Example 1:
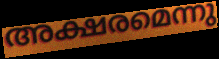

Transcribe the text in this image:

അക്ഷരമെന്നു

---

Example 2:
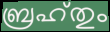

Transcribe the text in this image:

ബ്രഹ്തും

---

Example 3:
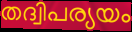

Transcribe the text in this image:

തദ്വിപര്യയം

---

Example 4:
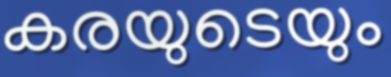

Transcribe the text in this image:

കരയുടെയും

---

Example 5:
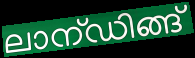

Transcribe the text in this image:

ലാന്ഡിങ്ങ്